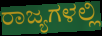
ರಾಜ್ಯಗಳಲ್ಲಿ